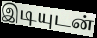
இடியுடன்